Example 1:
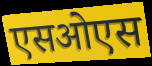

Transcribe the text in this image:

एसओएस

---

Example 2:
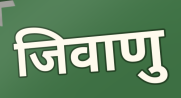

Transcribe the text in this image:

जिवाणु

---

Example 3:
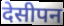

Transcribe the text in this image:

देसीपन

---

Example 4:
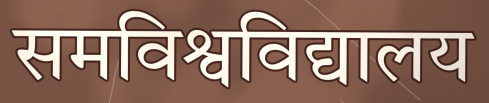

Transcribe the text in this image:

समविश्वविद्यालय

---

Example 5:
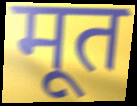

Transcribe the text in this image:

मूत